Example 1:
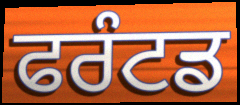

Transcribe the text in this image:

ਫਰੰਟਡ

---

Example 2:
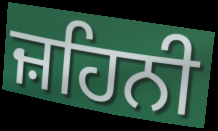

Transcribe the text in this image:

ਜ਼ਹਿਨੀ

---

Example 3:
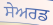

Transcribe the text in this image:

ਸੇਅਰਡ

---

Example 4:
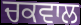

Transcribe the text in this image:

ਚਕਵਾਲ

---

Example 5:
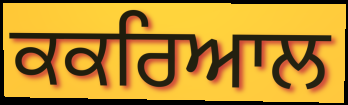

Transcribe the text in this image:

ਕਕਰਿਆਲ